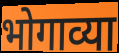
भोगाव्या